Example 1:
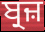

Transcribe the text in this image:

ਬ੍ਰਜ਼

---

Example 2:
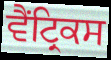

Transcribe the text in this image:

ਵੈਂਟ੍ਰਿਕਸ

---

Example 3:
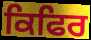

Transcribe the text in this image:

ਕਿਫਿਰ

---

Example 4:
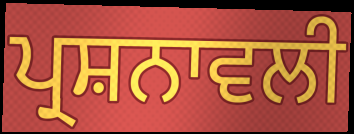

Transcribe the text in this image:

ਪ੍ਰਸ਼ਨਾਵਲੀ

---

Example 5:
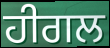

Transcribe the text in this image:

ਹੀਗਲ